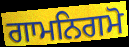
ਗਾਮਨਿਗਮੋ